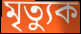
মৃত্যুক